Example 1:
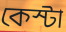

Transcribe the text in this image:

কেস্টা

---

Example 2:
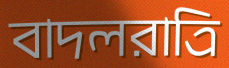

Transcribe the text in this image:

বাদলরাত্রি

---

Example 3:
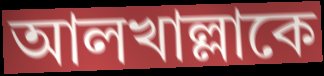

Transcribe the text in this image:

আলখাল্লাকে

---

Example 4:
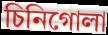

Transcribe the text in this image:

চিনিগোলা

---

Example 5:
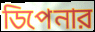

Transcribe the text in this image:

ডিপেনার